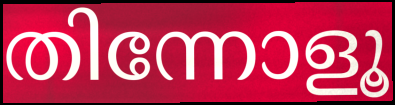
തിന്നോളൂ